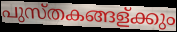
പുസ്തകങ്ങള്ക്കും